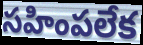
సహింపలేక